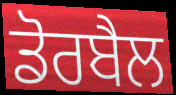
ਡੋਰਬੈਲ